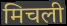
मिचली